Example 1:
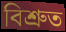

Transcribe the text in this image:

বিশ্রুত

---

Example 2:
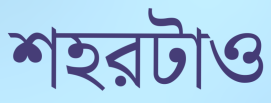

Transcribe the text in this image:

শহরটাও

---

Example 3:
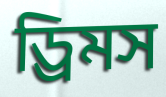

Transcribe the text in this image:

ড্রিমস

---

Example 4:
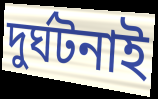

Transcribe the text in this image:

দুর্ঘটনাই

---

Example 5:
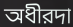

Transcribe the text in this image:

অধীরদা